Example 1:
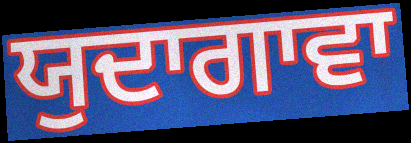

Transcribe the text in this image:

ਯੁਦਾਗਾਵਾ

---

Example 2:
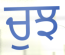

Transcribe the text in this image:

ਚੁਝ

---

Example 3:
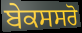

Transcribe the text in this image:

ਬੇਕਸਸਰੋ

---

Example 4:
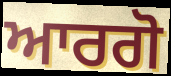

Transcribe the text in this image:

ਆਰਗੋ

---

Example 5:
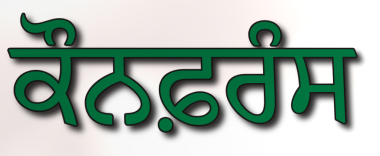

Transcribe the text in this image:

ਕੌਨਫ਼ਰੰਸ